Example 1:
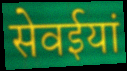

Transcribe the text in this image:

सेवईयां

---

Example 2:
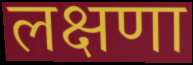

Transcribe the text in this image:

लक्षणा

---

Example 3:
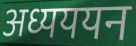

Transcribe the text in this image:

अध्यययन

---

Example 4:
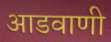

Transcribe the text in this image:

आडवाणी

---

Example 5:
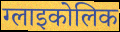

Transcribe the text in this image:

ग्लाइकोलिक